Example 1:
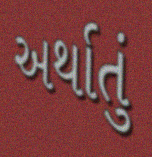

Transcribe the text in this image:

અર્થાતું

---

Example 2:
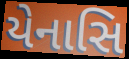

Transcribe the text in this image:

યેનાસિ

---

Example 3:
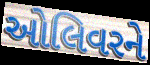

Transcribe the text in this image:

ઓલિવરને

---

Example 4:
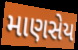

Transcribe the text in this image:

માણસેય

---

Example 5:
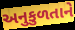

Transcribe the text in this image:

અનુકુળતાને